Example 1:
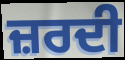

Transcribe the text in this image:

ਜ਼ਰਦੀ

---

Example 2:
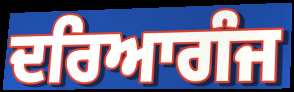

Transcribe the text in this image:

ਦਰਿਆਗੰਜ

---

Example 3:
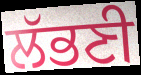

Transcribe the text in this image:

ਲੱਭਣੀ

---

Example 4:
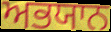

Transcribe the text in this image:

ਅਭਯਾਨ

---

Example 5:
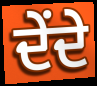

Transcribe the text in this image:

ਦੇਂਦੇ